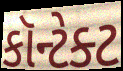
કૉન્ટેક્ટ